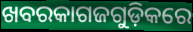
ଖବରକାଗଜଗୁଡ଼ିକରେ